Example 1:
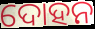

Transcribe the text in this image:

ଦୋହନ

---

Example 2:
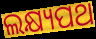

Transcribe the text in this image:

ଲକ୍ଷ୍ୟପଥ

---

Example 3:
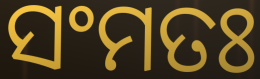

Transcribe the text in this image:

ସଂମତଃ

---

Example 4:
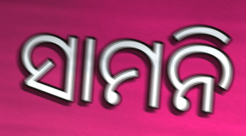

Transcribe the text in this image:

ସାମନି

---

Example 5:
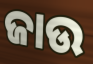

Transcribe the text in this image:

ଜାଉ